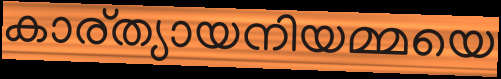
കാര്ത്യായനിയമ്മയെ